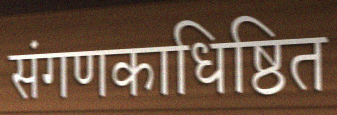
संगणकाधिष्ठित